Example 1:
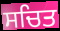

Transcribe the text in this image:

ਸਚਿਤ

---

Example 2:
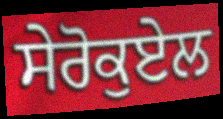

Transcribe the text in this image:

ਸੇਰੋਕੁਏਲ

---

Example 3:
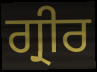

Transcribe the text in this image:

ਗ੍ਰੀਰ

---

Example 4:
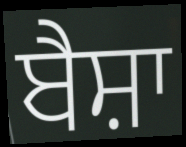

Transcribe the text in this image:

ਬੈਸ਼ਾ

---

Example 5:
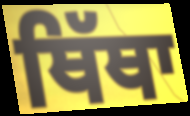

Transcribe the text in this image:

ਥਿੱਥਾ